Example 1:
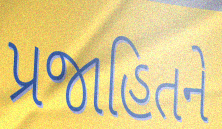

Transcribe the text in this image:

પ્રજાહિતને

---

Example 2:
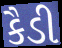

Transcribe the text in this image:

કૈડી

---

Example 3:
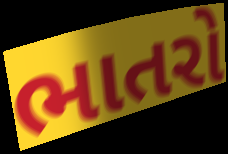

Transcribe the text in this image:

ભાતરો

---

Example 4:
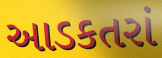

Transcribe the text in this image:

આડકતરાં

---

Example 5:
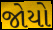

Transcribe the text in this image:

જોયો